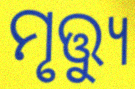
ମୃତ୍ତ୍ୟୁ